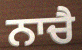
ਨਾਚੈ